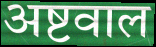
अष्टवाल